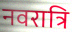
नवरात्रि